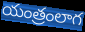
యంత్రంలాగ